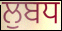
ਲੁਬਧ